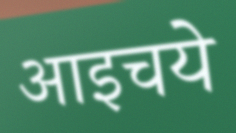
आइचये